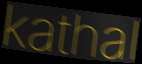
kathal